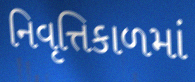
નિવૃત્તિકાળમાં